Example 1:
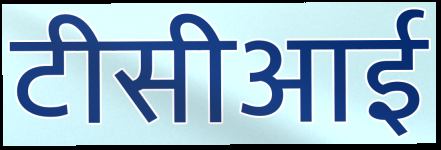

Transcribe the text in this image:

टीसीआई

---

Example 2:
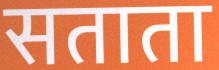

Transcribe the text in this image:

सताता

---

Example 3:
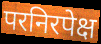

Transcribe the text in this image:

परनिरपेक्ष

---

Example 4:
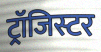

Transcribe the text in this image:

ट्रॉजिस्टर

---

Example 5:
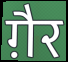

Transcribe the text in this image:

ग़ैर